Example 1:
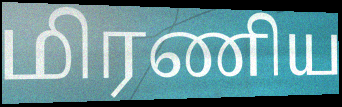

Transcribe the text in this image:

மிரணிய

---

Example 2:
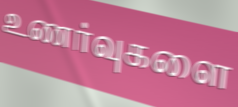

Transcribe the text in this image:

உணர்வுகளை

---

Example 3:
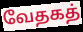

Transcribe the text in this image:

வேதகத்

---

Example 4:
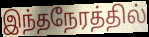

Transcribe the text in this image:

இந்தநேரத்தில்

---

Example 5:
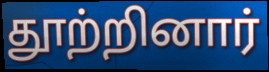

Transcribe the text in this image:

தூற்றினார்